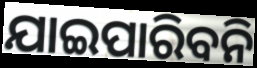
ଯାଇପାରିବନି